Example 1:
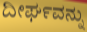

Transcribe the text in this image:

ದೀರ್ಘವನ್ನು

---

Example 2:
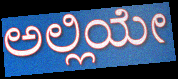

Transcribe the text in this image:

ಅಲ್ಲಿಯೇ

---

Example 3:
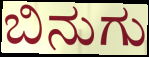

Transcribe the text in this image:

ಬಿನುಗು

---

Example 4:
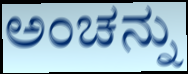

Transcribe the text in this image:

ಅಂಚನ್ನು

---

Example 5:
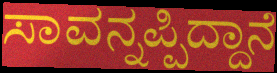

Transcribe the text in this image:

ಸಾವನ್ನಪ್ಪಿದ್ದಾನೆ